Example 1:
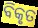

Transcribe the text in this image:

ବିକୃତ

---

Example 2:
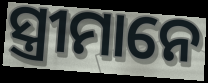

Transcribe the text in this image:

ସ୍ତ୍ରୀମାନେ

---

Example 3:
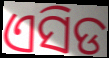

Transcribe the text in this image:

ଏସିଡ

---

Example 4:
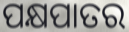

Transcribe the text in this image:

ପକ୍ଷପାତର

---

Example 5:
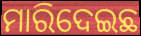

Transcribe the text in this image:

ମାରିଦେଇଛ